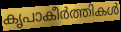
കൃപാകീർത്തികൾ